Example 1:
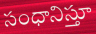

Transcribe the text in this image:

సంధానిస్తూ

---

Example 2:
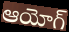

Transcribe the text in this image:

ఆయోగ్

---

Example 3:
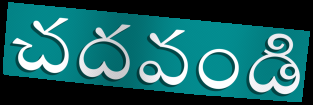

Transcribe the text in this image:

చదవండి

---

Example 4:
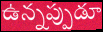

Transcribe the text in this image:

ఉన్నప్పుడూ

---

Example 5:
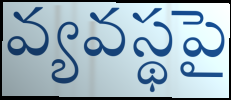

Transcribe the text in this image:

వ్యవస్థపై